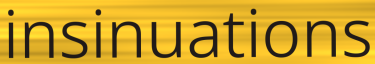
insinuations